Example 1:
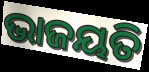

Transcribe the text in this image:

ଭାଜୟତି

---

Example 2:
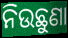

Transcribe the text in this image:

ନିଉଛୁଣା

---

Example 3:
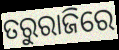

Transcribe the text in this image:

ତରୁରାଜିରେ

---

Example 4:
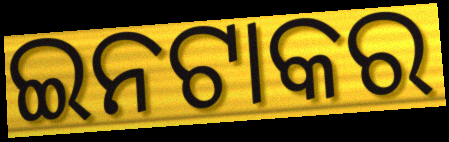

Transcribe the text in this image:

ଇନଟାକର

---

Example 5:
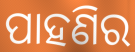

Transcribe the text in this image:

ପାହଣିର